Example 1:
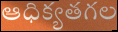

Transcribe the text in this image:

ఆధిక్యతగల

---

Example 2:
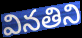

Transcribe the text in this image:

వినతిని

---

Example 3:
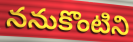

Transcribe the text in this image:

ననుకొంటిని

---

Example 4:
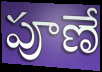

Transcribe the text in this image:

పూణే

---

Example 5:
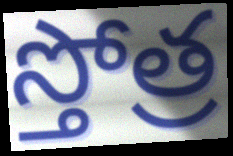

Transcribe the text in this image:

స్తోత్ర